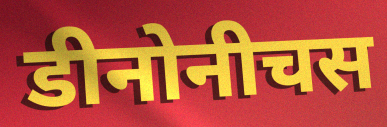
डीनोनीचस